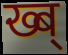
ख्ब्